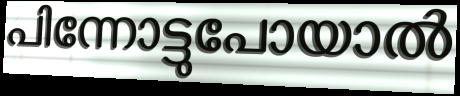
പിന്നോട്ടുപോയാൽ